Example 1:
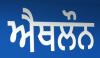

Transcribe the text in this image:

ਐਥਲੌਨ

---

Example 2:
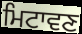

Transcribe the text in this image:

ਮਿਟਾਵਣ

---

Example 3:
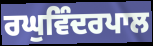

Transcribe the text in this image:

ਰਘੁਵਿੰਦਰਪਾਲ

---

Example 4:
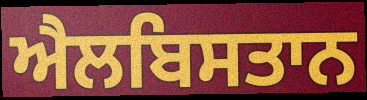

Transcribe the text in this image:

ਐਲਬਿਸਤਾਨ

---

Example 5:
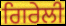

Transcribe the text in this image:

ਗਿਰੇਲੀ